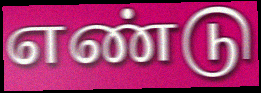
எண்டு